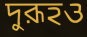
দুরূহও